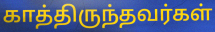
காத்திருந்தவர்கள்